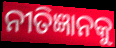
ନୀତିଜ୍ଞାନକୁ